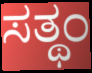
ಸತ್ಥಂ